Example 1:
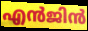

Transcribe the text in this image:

എൻജിൻ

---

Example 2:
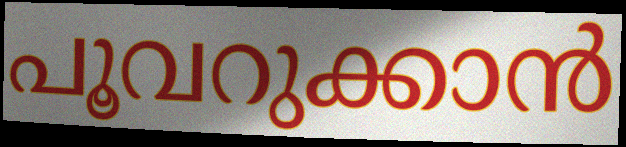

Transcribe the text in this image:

പൂവറുക്കാൻ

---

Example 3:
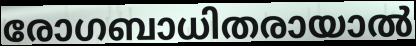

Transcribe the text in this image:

രോഗബാധിതരായാൽ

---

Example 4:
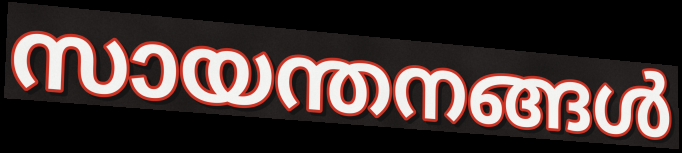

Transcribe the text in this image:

സായന്തനങ്ങൾ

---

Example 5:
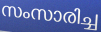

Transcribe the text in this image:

സംസാരിച്ച